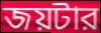
জয়টার